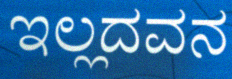
ಇಲ್ಲದವನ